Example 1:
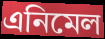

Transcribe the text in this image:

এনিমেল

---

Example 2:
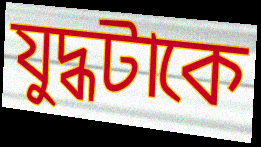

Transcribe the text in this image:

যুদ্ধটাকে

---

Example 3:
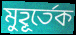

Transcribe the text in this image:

মুহূর্তেক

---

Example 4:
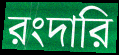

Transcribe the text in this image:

রংদারি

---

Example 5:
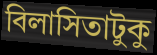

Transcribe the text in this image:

বিলাসিতাটুকু